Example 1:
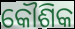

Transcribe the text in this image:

କୌଶିକ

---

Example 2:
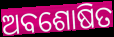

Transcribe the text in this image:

ଅବଶୋଷିତ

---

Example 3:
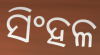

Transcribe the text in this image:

ସିଂହଳ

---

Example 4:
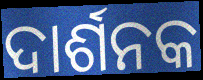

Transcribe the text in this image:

ଦାର୍ଶନକ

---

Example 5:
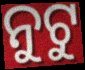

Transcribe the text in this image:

ନୁଟୁ